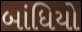
બાંધિયો